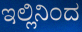
ಇಲ್ಲಿನಿಂದ